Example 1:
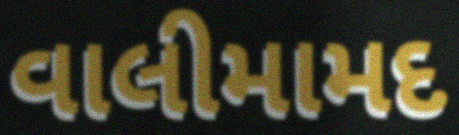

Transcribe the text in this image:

વાલીમામદ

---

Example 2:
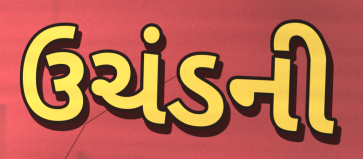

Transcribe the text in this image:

ઉચંડની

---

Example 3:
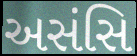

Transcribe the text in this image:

અસંસિ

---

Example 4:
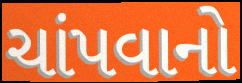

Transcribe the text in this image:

ચાંપવાનો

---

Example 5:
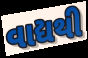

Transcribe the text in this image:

વાદ્યથી